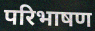
परिभाषण